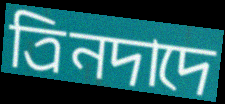
ত্রিনদাদে